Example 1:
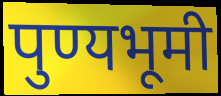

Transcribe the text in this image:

पुण्यभूमी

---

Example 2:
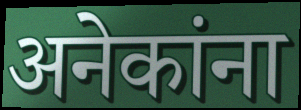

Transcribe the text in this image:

अनेकांना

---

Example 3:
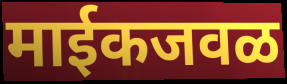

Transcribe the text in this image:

माईकजवळ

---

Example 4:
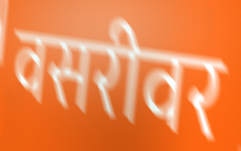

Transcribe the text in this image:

वसरीवर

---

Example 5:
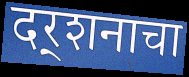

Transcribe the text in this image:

दर्शनाचा